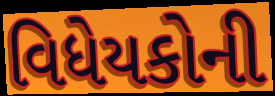
વિધેયકોની